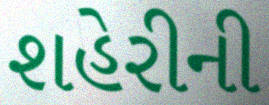
શહેરીની